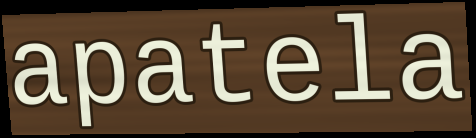
apatela